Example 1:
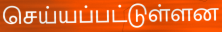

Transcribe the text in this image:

செய்யப்பட்டுள்ளன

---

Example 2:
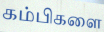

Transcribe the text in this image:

கம்பிகளை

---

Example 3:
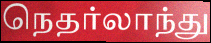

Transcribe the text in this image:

நெதர்லாந்து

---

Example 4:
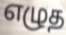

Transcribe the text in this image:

எழுத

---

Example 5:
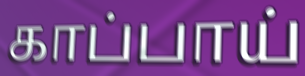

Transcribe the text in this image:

காப்பாய்